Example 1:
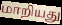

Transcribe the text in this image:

மாறியது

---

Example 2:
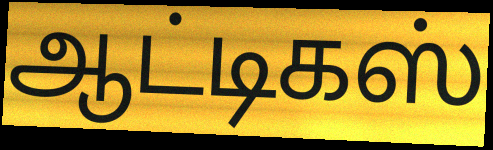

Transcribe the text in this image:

ஆட்டிகஸ்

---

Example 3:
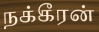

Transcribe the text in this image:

நக்கீரன்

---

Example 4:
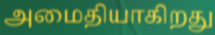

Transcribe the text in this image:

அமைதியாகிறது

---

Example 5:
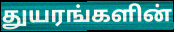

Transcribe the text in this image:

துயரங்களின்